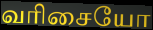
வரிசையோ